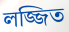
লজ্জিত